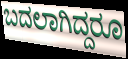
ಬದಲಾಗಿದ್ದರೂ